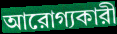
আরোগ্যকারী